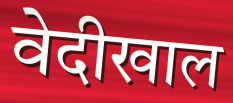
वेदीखाल